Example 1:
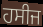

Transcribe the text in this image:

ਹਸੀਜ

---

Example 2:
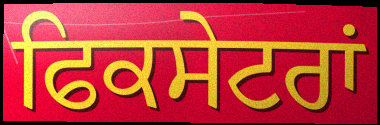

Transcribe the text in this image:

ਫਿਕਸੇਟਰਾਂ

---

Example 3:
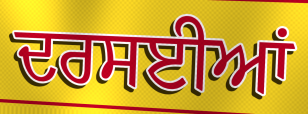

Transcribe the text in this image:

ਦਰਸਈਆਂ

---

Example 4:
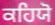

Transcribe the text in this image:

ਕਹਿਯੋ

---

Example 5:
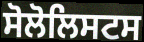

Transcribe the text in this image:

ਸੋਲੋਲਿਸਟਸ